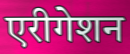
एरीगेशन